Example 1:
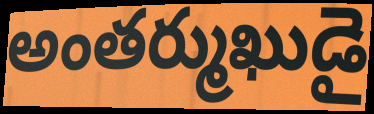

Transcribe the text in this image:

అంతర్ముఖుడై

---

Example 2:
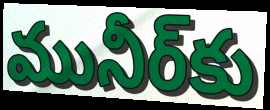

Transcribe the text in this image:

మునీర్‌కు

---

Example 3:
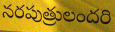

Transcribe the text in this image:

నరపుత్రులందరి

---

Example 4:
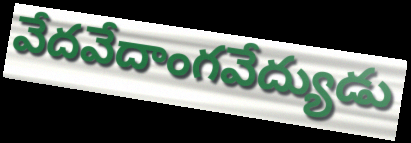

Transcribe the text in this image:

వేదవేదాంగవేద్యుడు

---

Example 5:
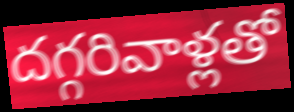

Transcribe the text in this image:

దగ్గరివాళ్లతో